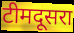
टीमदूसरा